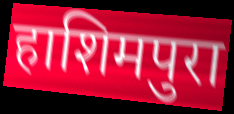
हाशिमपुरा